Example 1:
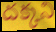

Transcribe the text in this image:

దక్కని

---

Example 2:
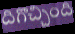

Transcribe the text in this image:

దిగొచ్చింది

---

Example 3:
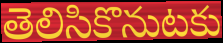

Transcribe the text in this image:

తెలిసికొనుటకు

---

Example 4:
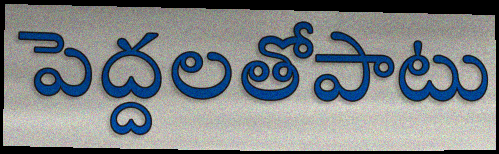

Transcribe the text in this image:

పెద్దలతోపాటు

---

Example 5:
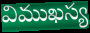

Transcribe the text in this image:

విముఖస్య